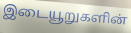
இடையூறுகளின்